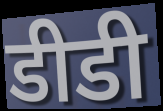
डीडी